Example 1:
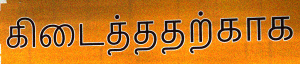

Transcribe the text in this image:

கிடைத்ததற்காக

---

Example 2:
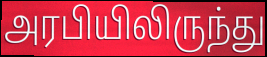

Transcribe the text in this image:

அரபியிலிருந்து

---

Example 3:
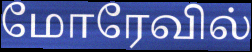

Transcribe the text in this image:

மோரேவில்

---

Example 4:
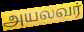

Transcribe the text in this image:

அயலவர்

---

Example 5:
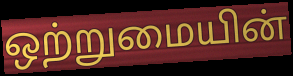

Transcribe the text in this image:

ஒற்றுமையின்